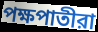
পক্ষপাতীরা